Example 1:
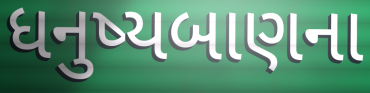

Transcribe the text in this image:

ધનુષ્યબાણના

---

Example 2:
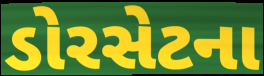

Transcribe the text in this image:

ડોરસેટના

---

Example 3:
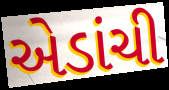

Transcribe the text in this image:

એડાંચી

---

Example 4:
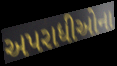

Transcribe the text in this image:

અપરાધીઓના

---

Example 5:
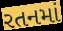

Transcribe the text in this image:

રતનમાં